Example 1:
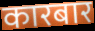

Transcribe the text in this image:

कारबार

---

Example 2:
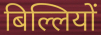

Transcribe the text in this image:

बिल्लियों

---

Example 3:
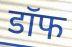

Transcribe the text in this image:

डॉफ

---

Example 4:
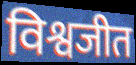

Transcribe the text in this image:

विश्वजीत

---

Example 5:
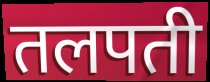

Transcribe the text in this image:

तलपती